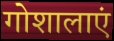
गोशालाएं